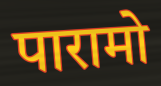
पारामो